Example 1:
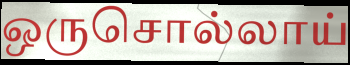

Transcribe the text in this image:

ஒருசொல்லாய்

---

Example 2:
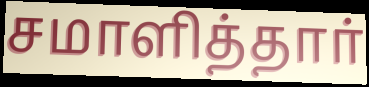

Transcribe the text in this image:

சமாளித்தார்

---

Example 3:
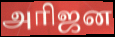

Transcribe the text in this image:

அரிஜன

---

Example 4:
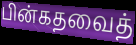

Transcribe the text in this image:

பின்கதவைத்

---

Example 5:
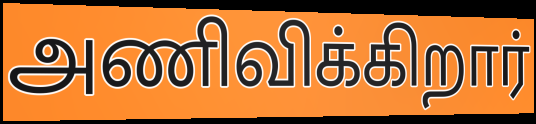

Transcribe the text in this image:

அணிவிக்கிறார்